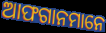
ଆଫଗାନମାନେ